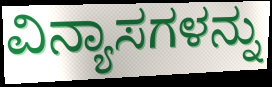
ವಿನ್ಯಾಸಗಳನ್ನು